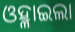
ଓହ୍ଳାଇଲା